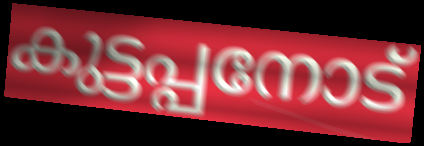
കുട്ടപ്പനോട്